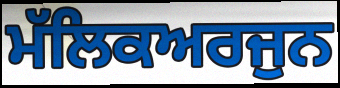
ਮੱਲਿਕਅਰਜੁਨ